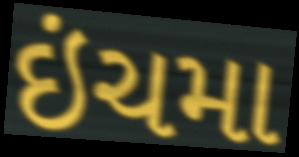
ઇંચમા